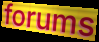
forums